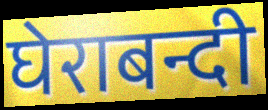
घेराबन्दी